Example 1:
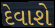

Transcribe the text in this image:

દેવાશે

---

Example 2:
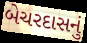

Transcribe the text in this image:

બેચરદાસનું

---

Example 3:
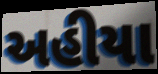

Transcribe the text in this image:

અહીયા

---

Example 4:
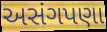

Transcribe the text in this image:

અસંગપણા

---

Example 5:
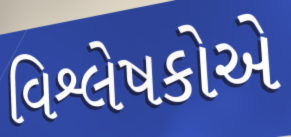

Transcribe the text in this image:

વિશ્લેષકોએ